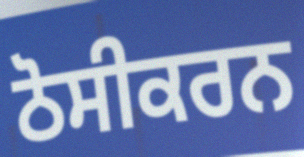
ਠੋਸੀਕਰਨ